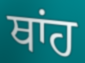
ਥਾਂਹ